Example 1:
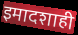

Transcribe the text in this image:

इमादशाही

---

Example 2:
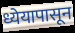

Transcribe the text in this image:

ध्येयापासून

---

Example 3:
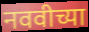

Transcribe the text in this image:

नववीच्या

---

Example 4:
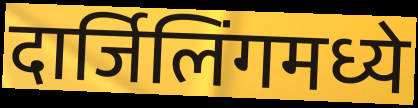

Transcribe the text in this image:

दार्जिलिंगमध्ये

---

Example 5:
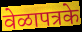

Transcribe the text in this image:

वेळापत्रके